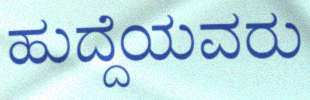
ಹುದ್ದೆಯವರು